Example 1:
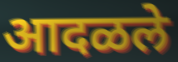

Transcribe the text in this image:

आदळले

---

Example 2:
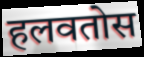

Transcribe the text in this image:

हलवतोस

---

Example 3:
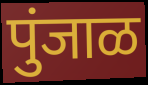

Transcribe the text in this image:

पुंजाळ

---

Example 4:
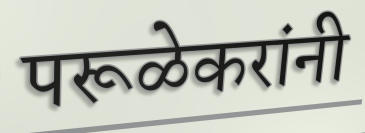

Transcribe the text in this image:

परूळेकरांनी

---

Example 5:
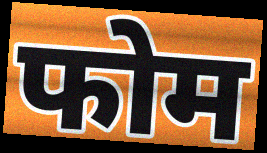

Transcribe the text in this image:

फोम